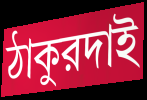
ঠাকুরদাই